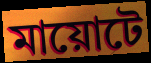
মায়োটে